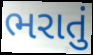
ભરાતું